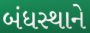
બંધસ્થાને